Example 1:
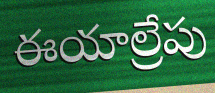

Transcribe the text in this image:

ఈయాల్రేపు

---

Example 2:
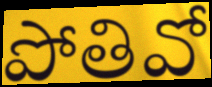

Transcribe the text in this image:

పోతివో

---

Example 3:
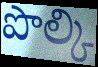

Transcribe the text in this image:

పొల్కి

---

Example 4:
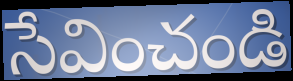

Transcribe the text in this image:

సేవించండి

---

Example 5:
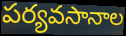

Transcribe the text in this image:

పర్యవసానాల